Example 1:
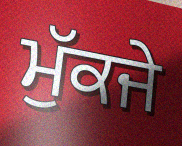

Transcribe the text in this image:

ਮੁੱਕਜੇ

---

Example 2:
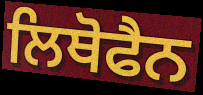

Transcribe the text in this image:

ਲਿਥੋਫੈਨ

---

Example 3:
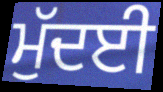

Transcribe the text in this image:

ਮੁੱਦਈ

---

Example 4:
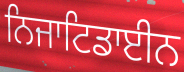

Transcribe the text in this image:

ਨਿਜਾਟਿਡਾਈਨ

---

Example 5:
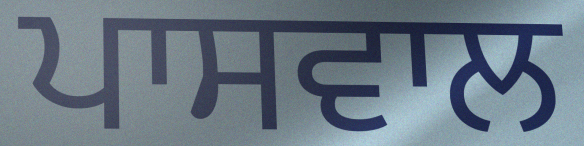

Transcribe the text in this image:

ਪਾਸਵਾਲ